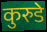
कुरुडे